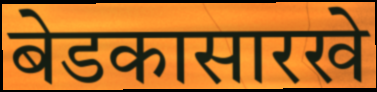
बेडकासारखे